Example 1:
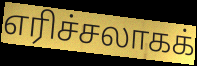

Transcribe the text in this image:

எரிச்சலாகக்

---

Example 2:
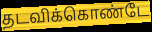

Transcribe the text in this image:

தடவிக்கொண்டே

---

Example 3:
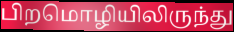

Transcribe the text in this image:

பிறமொழியிலிருந்து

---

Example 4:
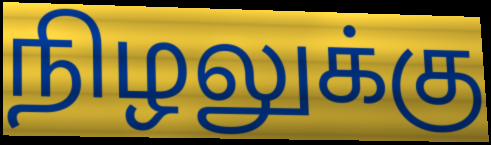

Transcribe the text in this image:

நிழலுக்கு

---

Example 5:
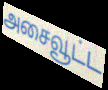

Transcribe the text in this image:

அசைவூட்ட